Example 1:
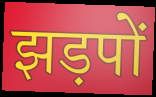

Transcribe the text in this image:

झड़पों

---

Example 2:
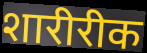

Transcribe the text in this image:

शारीरीक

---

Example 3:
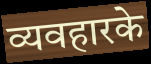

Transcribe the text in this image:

व्यवहारके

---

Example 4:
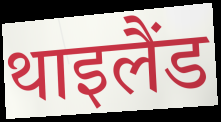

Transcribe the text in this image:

थाइलैंड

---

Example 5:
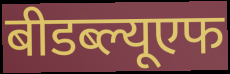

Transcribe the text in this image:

बीडब्ल्यूएफ